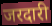
जरदारी